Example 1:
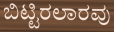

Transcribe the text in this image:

ಬಿಟ್ಟಿರಲಾರವು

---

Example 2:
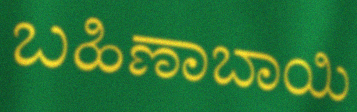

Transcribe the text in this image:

ಬಹಿಣಾಬಾಯಿ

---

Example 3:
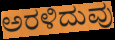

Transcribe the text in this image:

ಅರಳಿದುವು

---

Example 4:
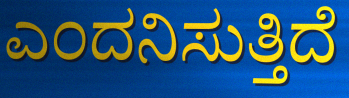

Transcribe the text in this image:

ಎಂದನಿಸುತ್ತಿದೆ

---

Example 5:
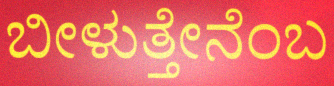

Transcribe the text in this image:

ಬೀಳುತ್ತೇನೆಂಬ